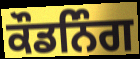
ਕੌਡਨਿੰਗ